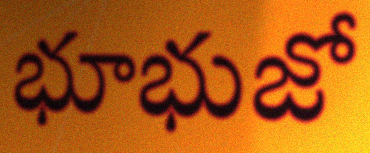
భూభుజో